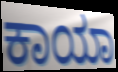
ಕಾಯಾ